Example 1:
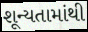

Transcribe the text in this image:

શૂન્યતામાંથી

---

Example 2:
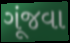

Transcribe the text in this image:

ગૂંજવા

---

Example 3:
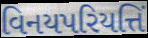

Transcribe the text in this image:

વિનયપરિયત્તિં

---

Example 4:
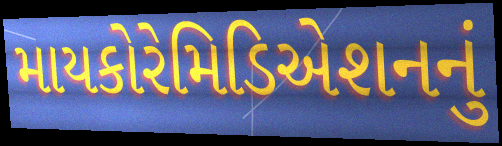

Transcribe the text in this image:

માયકોરેમિડિએશનનું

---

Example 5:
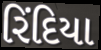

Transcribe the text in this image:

રિંદિયા